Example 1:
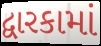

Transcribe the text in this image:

દ્વારકામાં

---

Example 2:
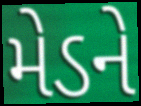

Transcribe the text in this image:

મેડને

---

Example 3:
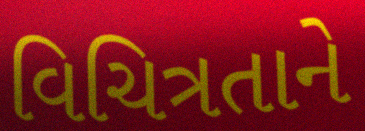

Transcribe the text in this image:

વિચિત્રતાને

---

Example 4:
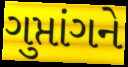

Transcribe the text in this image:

ગુપ્તાંગને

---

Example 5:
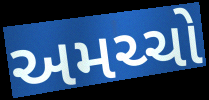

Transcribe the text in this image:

અમચ્ચો